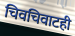
चिवचिवाटही